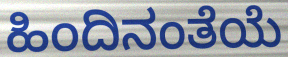
ಹಿಂದಿನಂತೆಯೆ